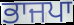
ਭਾਜਪਾ